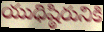
యుధిష్ఠిరునికి